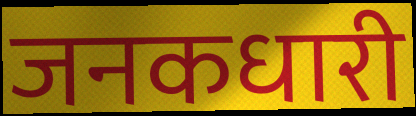
जनकधारी